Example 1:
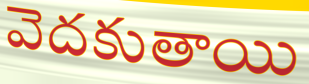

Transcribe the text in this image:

వెదకుతాయి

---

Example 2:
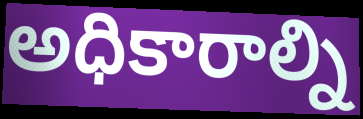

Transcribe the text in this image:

అధికారాల్ని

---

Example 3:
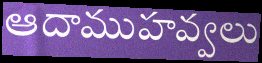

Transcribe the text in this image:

ఆదాముహవ్వలు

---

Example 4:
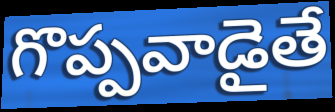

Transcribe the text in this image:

గొప్పవాడైతే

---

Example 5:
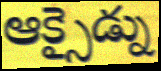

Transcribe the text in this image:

ఆక్సైడ్ను